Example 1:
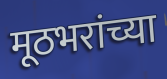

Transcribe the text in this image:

मूठभरांच्या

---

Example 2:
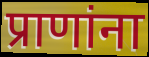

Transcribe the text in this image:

प्राणांना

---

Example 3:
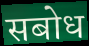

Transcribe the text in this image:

सबोध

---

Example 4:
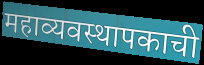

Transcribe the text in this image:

महाव्यवस्थापकाची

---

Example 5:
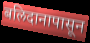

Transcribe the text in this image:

बलिदानापासून